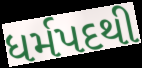
ધર્મપદથી